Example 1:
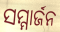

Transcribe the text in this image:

ସମ୍ମାର୍ଜନ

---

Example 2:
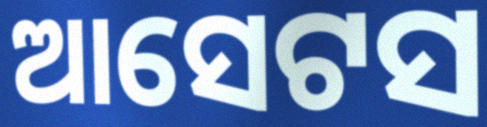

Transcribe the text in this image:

ଆସେଟସ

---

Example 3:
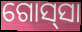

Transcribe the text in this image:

ଗୋସ୍‌ସା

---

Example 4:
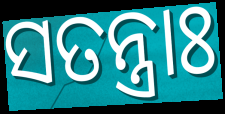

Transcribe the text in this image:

ସତନ୍ତ୍ରାଃ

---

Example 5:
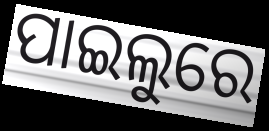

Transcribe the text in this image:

ପାଇଲୁରେ